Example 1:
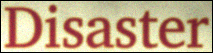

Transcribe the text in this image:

Disaster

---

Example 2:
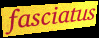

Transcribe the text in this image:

fasciatus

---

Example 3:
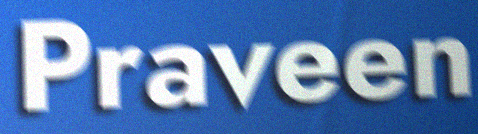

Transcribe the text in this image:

Praveen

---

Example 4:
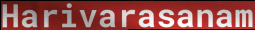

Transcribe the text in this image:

Harivarasanam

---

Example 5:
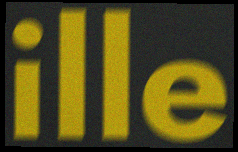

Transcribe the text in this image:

ille